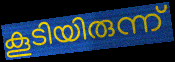
കൂടിയിരുന്ന്